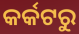
କର୍କଟରୁ